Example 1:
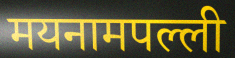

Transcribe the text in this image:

मयनामपल्ली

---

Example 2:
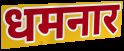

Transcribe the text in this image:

धमनार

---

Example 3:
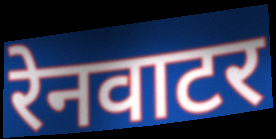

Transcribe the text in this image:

रेनवाटर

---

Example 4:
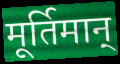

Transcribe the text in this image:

मूर्तिमान्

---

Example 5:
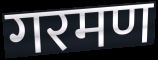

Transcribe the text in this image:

गरमण